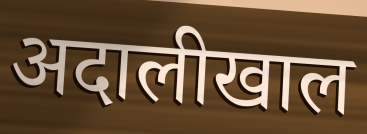
अदालीखाल